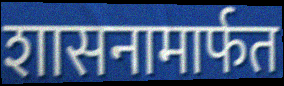
शासनामार्फत